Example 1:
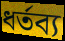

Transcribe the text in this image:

ধর্তব্য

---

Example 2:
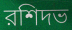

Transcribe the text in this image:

রশিদভ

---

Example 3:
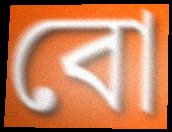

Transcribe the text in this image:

বো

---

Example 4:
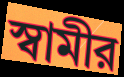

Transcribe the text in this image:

স্বামীর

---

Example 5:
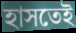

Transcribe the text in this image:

হাসতেই